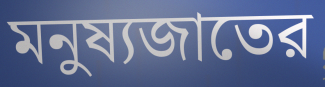
মনুষ্যজাতের